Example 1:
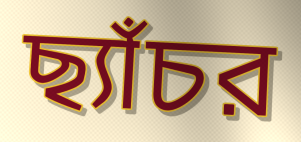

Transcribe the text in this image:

ছ্যাঁচর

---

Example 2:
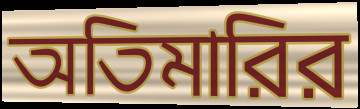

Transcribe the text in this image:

অতিমারির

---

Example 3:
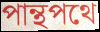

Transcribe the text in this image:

পান্থপথে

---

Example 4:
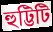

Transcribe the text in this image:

হুট্টিটি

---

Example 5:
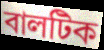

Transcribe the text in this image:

বালটিক